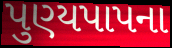
પુણ્યપાપના